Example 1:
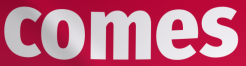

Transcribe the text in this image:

comes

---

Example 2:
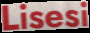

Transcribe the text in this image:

Lisesi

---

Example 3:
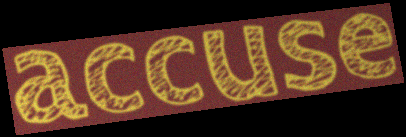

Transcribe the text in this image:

accuse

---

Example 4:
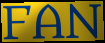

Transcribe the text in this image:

FAN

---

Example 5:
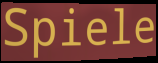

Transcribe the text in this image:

Spiele